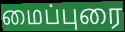
மைப்புரை